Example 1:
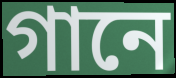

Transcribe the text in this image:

গানে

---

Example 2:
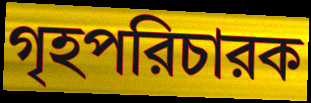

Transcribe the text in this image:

গৃহপরিচারক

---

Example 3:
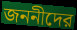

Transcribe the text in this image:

জননীদের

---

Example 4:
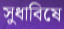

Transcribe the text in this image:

সুধাবিষে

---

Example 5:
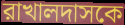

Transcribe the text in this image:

রাখালদাসকে